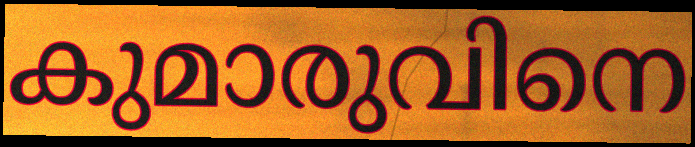
കുമാരുവിനെ